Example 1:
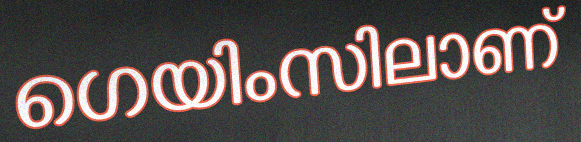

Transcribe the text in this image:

ഗെയിംസിലാണ്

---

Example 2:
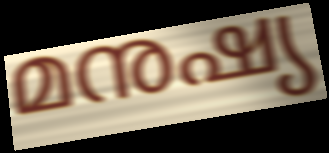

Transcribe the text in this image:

മനുഷ്യ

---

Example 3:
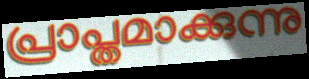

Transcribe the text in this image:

പ്രാപ്തമാക്കുന്നു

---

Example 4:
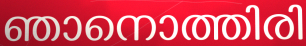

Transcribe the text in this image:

ഞാനൊത്തിരി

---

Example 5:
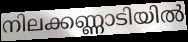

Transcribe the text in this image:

നിലക്കണ്ണാടിയിൽ